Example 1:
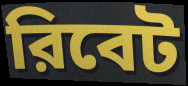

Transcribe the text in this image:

রিবেট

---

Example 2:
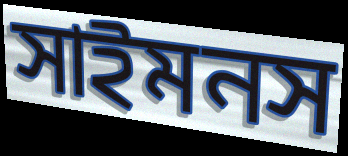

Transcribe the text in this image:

সাইমনস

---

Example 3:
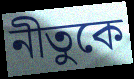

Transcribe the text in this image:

নীতুকে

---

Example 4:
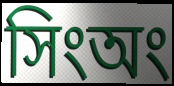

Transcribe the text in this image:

সিংঅং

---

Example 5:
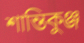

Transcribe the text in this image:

শান্তিকুঞ্জ